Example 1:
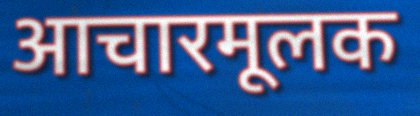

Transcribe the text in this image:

आचारमूलक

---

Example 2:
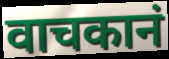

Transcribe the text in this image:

वाचकानं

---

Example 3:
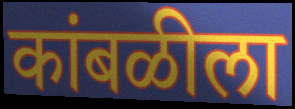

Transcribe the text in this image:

कांबळीला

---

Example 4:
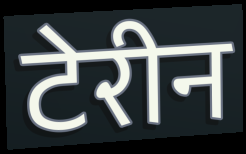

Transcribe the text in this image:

टेरीन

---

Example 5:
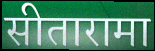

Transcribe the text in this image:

सीतारामा